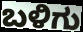
ಬಳಿಗು